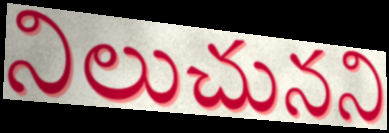
నిలుచునని